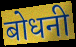
बोधनी